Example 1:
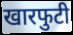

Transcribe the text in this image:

खारफुटी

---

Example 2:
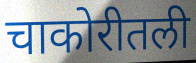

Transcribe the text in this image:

चाकोरीतली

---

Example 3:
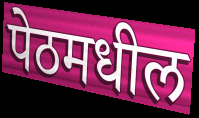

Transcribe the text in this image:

पेठमधील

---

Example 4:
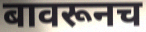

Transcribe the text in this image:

बावरूनच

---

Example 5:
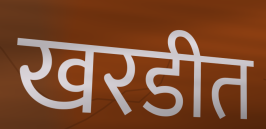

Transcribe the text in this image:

खरडीत